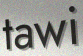
tawi